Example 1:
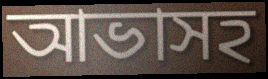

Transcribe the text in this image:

আভাসহ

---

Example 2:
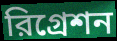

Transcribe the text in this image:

রিগ্রেশন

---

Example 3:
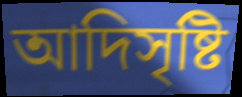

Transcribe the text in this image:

আদিসৃষ্টি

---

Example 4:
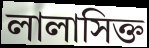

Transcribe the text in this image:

লালাসিক্ত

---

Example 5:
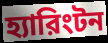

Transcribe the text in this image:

হ্যারিংটন